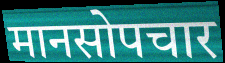
मानसोपचार